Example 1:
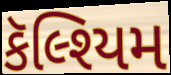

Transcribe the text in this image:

કૅલ્શ્યિમ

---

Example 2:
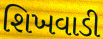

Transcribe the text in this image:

શિખવાડી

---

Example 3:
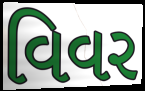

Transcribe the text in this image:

વિવર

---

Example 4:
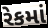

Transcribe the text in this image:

રેકમાં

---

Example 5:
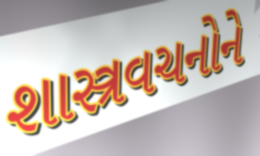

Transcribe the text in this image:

શાસ્ત્રવચનોને